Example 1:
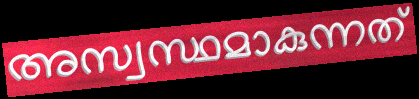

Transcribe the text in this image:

അസ്വസ്ഥമാകുന്നത്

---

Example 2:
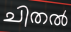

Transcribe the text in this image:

ചിതൽ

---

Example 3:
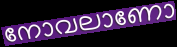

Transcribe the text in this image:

നോവലാണോ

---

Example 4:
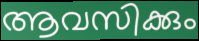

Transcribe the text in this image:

ആവസിക്കും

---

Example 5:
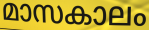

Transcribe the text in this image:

മാസകാലം